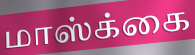
மாஸ்க்கை